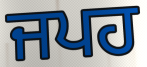
ਜਪਹ